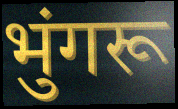
भुंगरू